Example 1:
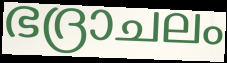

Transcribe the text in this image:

ഭദ്രാചലം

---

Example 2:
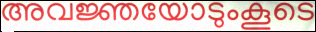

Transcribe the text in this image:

അവജ്ഞയോടുംകൂടെ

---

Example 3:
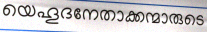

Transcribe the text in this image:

യെഹൂദനേതാക്കന്മാരുടെ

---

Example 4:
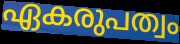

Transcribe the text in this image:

ഏകരുപത്വം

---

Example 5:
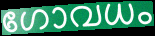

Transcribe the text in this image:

ഗോവധം